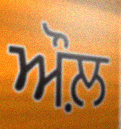
ਔਲ਼